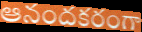
ఆనందకరంగా